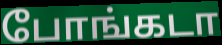
போங்கடா